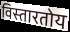
विस्तारतोय